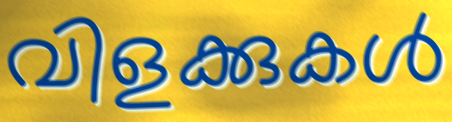
വിളക്കുകൾ